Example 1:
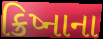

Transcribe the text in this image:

ક્રિષ્નાના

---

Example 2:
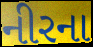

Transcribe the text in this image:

નીરના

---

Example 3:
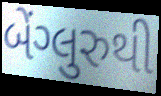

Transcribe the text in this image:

બેંગ્લુરુથી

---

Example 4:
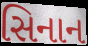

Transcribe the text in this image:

સિનાન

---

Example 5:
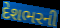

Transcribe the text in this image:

દેશભરની